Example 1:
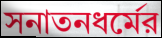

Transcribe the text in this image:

সনাতনধর্মের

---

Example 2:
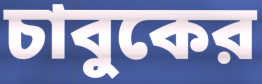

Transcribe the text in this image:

চাবুকের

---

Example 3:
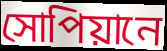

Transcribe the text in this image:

সোপিয়ানে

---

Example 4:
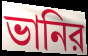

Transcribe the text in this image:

ভানির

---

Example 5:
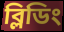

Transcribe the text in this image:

ব্লিডিং